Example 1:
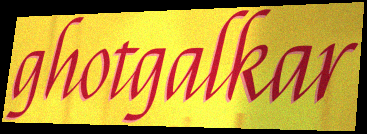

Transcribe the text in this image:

ghotgalkar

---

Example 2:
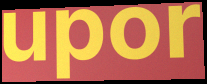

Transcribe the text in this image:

upor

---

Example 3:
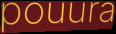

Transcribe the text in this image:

pouura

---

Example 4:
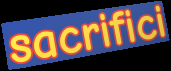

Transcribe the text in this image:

sacrifici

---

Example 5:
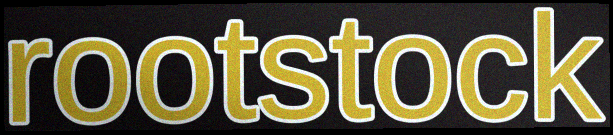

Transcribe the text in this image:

rootstock